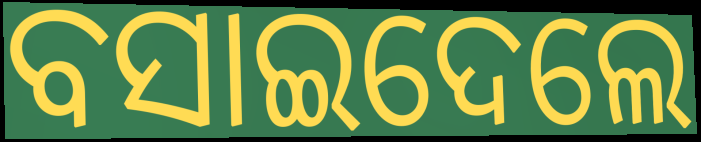
ବସାଇଦେଲେ